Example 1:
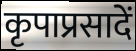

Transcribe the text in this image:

कृपाप्रसादें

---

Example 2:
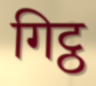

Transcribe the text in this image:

गिट्ठ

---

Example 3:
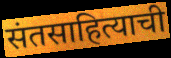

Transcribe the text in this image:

संतसाहित्याची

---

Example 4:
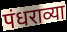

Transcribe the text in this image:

पंधराव्या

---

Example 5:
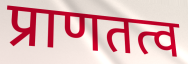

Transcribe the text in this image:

प्राणतत्व